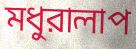
মধুরালাপ